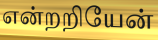
என்றறியேன்